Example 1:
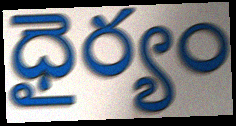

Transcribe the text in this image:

ధైర్యం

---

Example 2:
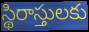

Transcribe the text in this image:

స్థిరాస్తులకు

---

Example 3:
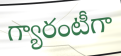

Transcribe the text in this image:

గ్యారంటీగా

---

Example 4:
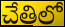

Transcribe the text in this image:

చేతిలో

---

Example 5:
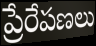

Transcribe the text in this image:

ప్రేరేపణలు